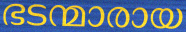
ഭടന്മാരായ